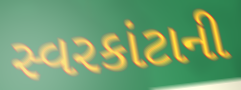
સ્વરકાંટાની